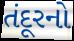
તંદૂરનો